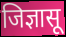
जिज्ञासू